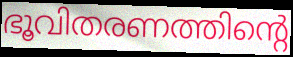
ഭൂവിതരണത്തിന്റെ